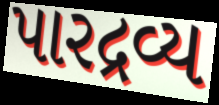
પારદ્રવ્ય